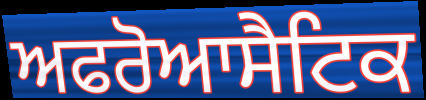
ਅਫਰੋਆਸੈਟਿਕ